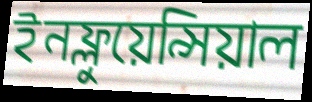
ইনফ্লুয়েন্সিয়াল